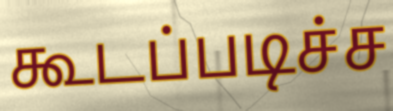
கூடப்படிச்ச